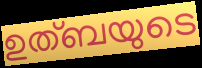
ഉത്ബയുടെ